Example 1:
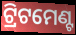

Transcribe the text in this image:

ଟ୍ରିଟମେଣ୍ଟ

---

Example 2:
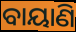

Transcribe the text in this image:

ବାୟାଣି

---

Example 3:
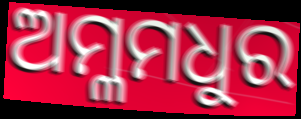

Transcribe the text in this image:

ଅମ୍ଳମଧୁର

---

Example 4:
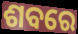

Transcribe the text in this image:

ଶବରେ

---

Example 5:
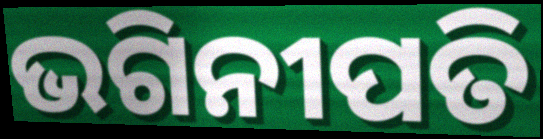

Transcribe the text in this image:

ଭଗିନୀପତି